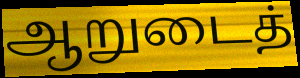
ஆறுடைத்